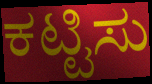
ಕಟ್ಟಿಸು